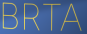
BRTA